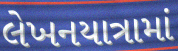
લેખનયાત્રામાં